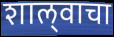
शाल्वाचा